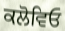
ਕਲੋਵਿਓ